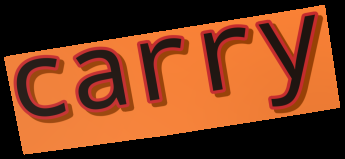
carry